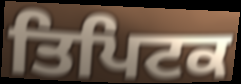
ਤਿਪਿਟਕ